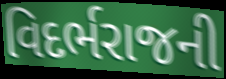
વિદર્ભરાજની